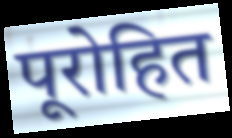
पूरोहित